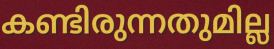
കണ്ടിരുന്നതുമില്ല